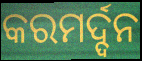
କରମର୍ଦ୍ଦନ